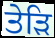
ਤੇੜਿ